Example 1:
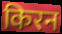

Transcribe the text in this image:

किरन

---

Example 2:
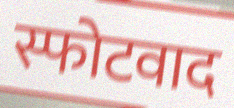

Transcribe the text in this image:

स्फोटवाद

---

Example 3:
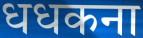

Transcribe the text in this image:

धधकना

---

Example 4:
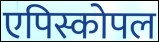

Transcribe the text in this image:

एपिस्कोपल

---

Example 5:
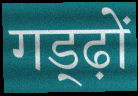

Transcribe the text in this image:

गड्‌ढ़ों